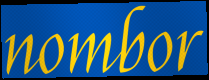
nombor